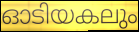
ഓടിയകലും